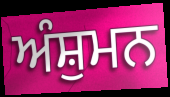
ਅੰਸ਼ੁਮਨ